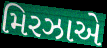
મિરઝાએ